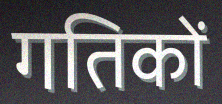
गतिकों